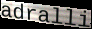
adralli